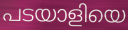
പടയാളിയെ